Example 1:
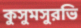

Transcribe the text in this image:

কুসুমসুরভি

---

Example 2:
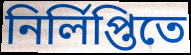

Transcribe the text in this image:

নির্লিপ্তিতে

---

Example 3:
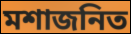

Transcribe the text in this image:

মশাজনিত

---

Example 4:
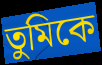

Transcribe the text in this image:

তুমিকে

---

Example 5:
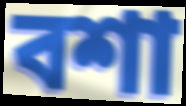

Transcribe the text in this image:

বশা